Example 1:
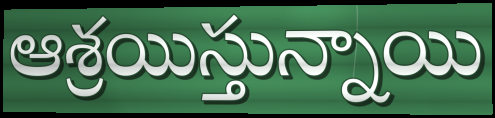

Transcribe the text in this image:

ఆశ్రయిస్తున్నాయి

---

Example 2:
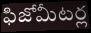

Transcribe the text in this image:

ఫిజోమీటర్ల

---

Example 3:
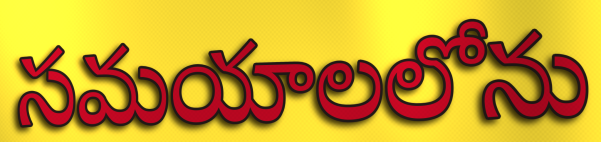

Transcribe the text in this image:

సమయాలలోను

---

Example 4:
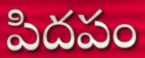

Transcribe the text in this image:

పిదపం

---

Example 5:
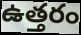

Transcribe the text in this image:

ఉత్తరం